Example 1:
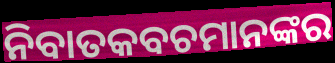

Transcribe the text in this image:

ନିବାତକବଚମାନଙ୍କର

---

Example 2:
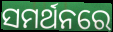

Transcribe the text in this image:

ସମର୍ଥନରେ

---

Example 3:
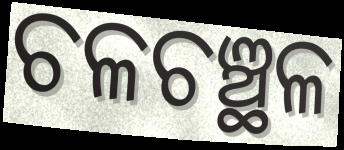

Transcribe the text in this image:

ଚଳଚଞ୍ଛଳ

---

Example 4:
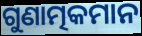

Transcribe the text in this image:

ଗୁଣାତ୍ମକମାନ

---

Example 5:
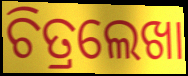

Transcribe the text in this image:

ଚିତ୍ରଲେଖା